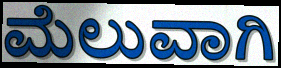
ಮೆಲುವಾಗಿ